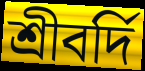
শ্রীবর্দি